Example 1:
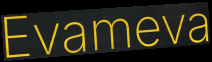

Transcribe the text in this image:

Evameva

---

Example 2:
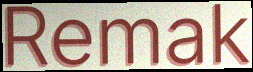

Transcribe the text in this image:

Remak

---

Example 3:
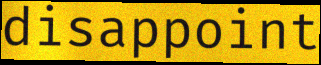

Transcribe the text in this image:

disappoint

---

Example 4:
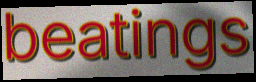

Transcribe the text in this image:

beatings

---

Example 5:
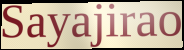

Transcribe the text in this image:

Sayajirao